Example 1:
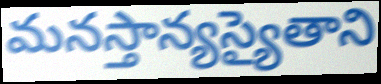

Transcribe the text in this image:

మనస్తాన్యస్యైతాని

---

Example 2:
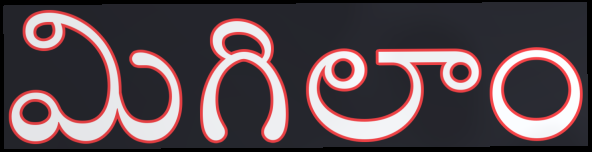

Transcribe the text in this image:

మిగిలాం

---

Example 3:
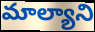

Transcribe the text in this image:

మాల్యాని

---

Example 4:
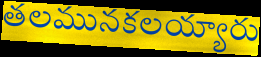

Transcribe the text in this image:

తలమునకలయ్యారు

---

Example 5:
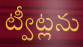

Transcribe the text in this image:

ట్వీట్లను